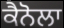
ਕੈਨੋਲਾ